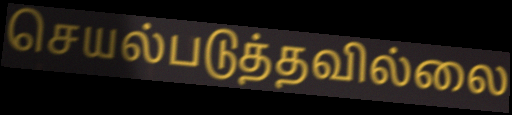
செயல்படுத்தவில்லை